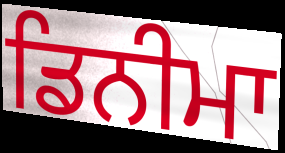
ਡਿਨੀਮਾ